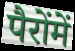
पैरोंमें